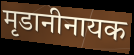
मृडानीनायक